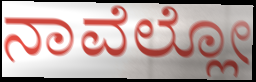
ನಾವೆಲ್ಲೋ